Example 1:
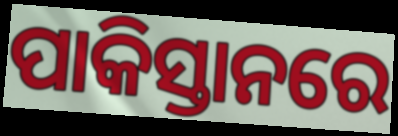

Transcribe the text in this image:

ପାକିସ୍ତାନରେ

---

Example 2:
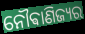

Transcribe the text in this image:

ନୌଵାଣିଜ୍ୟର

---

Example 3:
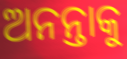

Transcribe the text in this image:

ଅନନ୍ତାକୁ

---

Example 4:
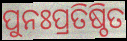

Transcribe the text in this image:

ପୁନଃପ୍ରତିଷ୍ଠିତ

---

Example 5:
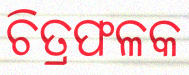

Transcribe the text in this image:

ଚିତ୍ରଫଳକ